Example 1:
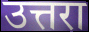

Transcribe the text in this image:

उत्तरा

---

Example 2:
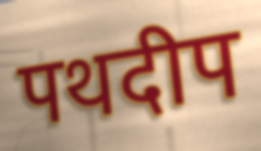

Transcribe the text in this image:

पथदीप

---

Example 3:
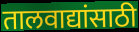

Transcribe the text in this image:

तालवाद्यांसाठी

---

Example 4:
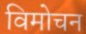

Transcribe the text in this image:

विमोचन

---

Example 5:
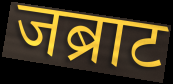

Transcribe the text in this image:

जब्राट